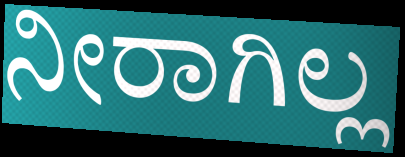
ನೀರಾಗಿಲ್ಲ